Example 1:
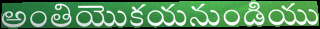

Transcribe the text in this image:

అంతియొకయనుండియు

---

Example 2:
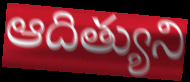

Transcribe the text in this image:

ఆదిత్యుని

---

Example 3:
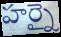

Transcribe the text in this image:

హర్నై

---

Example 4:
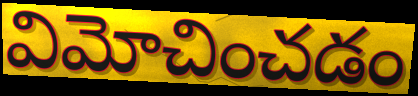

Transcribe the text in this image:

విమోచించడం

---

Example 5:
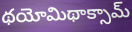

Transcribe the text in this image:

థయోమిథాక్సామ్